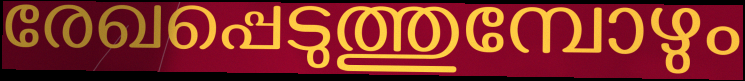
രേഖപ്പെടുത്തുമ്പോഴും